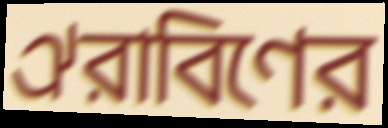
ঐরাবিণের